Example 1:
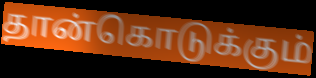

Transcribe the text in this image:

தான்கொடுக்கும்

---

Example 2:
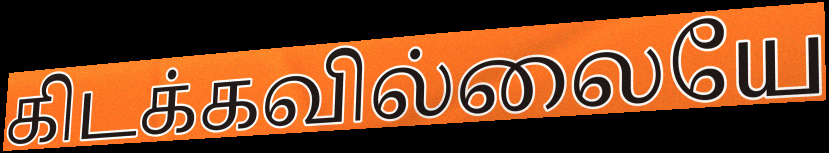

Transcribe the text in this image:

கிடக்கவில்லையே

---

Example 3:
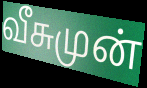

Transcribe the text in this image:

வீசுமுன்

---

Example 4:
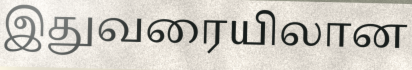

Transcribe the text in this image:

இதுவரையிலான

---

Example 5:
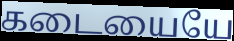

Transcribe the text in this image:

கடையையே